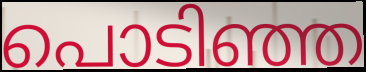
പൊടിഞ്ഞ